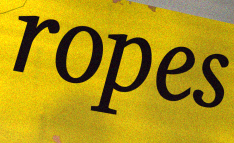
ropes